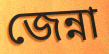
জেন্না